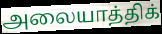
அலையாத்திக்